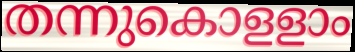
തന്നുകൊളളാം